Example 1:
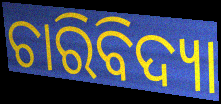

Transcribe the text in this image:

ଚାରିବିଦ୍ୟା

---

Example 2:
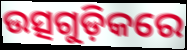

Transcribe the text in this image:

ଉତ୍ସଗୁଡ଼ିକରେ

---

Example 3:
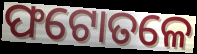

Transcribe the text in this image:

ଫଟୋତଳେ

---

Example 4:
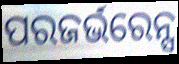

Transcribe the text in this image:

ପରଜର୍ଭରେନ୍ସ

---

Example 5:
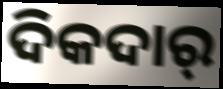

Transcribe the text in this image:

ଦିକଦାର୍